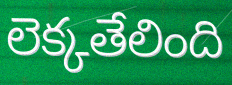
లెక్కతేలింది